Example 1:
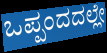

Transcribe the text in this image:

ಒಪ್ಪಂದದಲ್ಲೇ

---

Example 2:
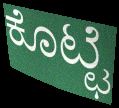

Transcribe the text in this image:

ಕೊಟ್ಟೆ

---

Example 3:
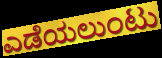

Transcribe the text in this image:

ಎಡೆಯಲುಂಟು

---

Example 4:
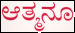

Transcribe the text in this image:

ಆತ್ಮನೂ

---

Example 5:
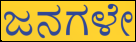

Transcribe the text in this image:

ಜನಗಳೇ